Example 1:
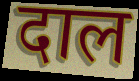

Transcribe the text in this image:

दाल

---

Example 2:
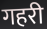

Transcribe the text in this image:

गहरी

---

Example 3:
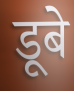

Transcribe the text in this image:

डूबे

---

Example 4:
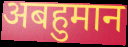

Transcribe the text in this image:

अबहुमान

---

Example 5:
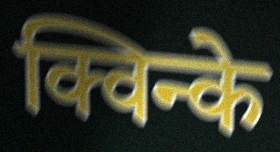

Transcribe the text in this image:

क्विन्के